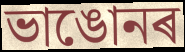
ভাঙোনৰ